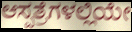
ಆಸ್ಪತ್ರೆಗಳಲ್ಲಿಯೇ